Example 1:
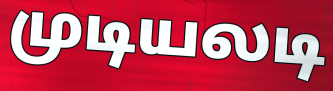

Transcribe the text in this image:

முடியலடி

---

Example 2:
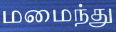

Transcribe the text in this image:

மமைந்து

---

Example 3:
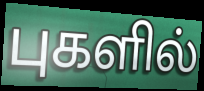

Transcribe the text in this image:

புகளில்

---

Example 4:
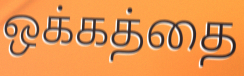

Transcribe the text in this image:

ஒக்கத்தை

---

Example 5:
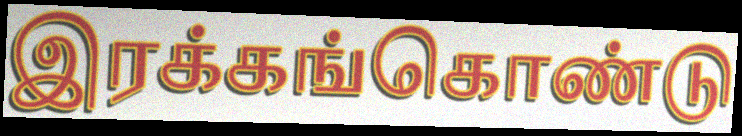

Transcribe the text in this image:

இரக்கங்கொண்டு